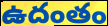
ఉదంతం